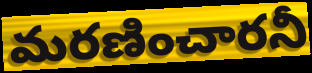
మరణించారనీ